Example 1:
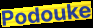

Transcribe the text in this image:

Podouke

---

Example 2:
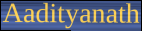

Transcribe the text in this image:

Aadityanath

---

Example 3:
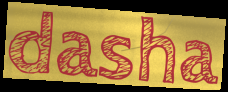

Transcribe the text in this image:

dasha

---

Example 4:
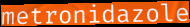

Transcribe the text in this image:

metronidazole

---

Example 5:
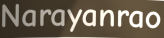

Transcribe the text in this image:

Narayanrao